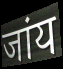
जांय